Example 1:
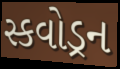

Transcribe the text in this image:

સ્કવોડ્રન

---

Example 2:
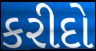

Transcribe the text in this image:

કરીદો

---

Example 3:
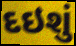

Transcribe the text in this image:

દઇશું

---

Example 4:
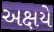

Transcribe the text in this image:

અક્ષયે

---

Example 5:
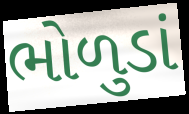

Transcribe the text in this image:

ભોળુડાં